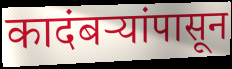
कादंबऱ्यांपासून